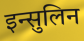
इन्सुलिन